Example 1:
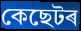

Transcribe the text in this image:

কেছেটৰ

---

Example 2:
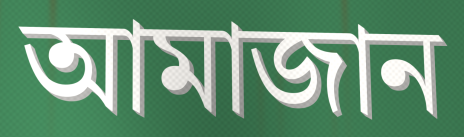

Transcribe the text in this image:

আমাজান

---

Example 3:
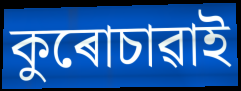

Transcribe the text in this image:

কুৰোচাৱাই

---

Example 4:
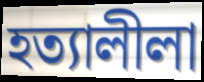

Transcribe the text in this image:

হত্যালীলা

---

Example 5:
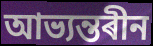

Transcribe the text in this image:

আভ্যন্তৰীন